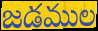
జడముల